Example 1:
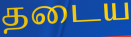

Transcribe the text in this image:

தடைய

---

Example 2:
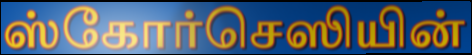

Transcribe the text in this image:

ஸ்கோர்செஸியின்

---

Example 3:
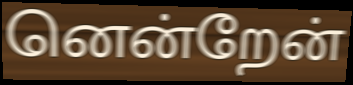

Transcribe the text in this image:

னென்றேன்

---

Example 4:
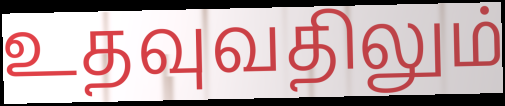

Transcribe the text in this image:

உதவுவதிலும்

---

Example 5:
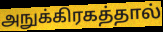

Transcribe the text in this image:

அநுக்கிரகத்தால்